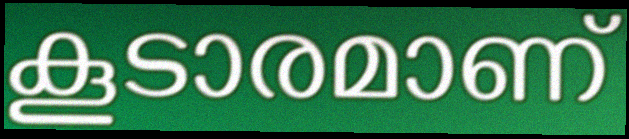
കൂടാരമാണ്